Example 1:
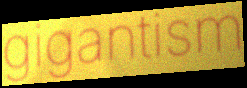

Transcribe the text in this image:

gigantism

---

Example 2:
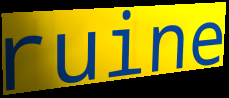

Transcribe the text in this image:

ruine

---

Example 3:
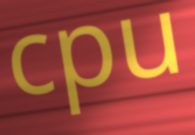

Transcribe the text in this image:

cpu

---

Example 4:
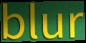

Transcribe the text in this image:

blur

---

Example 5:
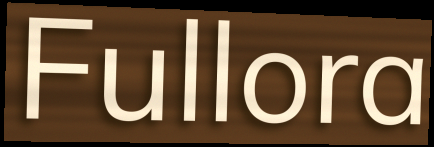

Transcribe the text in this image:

Fullora